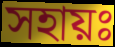
সহায়ঃ